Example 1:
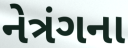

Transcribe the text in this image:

નેત્રંગના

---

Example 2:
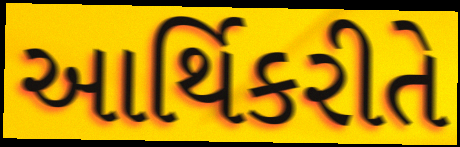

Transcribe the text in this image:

આર્થિકરીતે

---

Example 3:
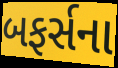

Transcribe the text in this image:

બફર્સના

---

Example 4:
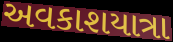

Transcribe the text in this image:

અવકાશયાત્રા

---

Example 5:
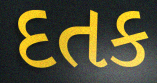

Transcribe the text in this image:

દતક